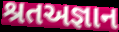
શ્રતઅજ્ઞાન